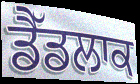
ਡੈੱਡਲਾਕ